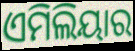
ଏମିଲିୟାର